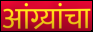
आंग्र्यांचा